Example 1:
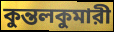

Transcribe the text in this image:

কুন্তলকুমারী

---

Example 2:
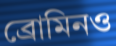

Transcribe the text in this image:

ব্রোমিনও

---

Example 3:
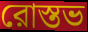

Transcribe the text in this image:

রোস্তভ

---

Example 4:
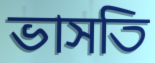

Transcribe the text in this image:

ভাসতি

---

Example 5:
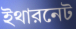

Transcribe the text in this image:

ইথারনেট